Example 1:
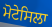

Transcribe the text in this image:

ਮੋਟੇਸਿਲਾ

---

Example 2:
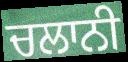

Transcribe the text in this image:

ਚਲਾਨੀ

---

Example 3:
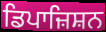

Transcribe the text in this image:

ਡਿਪਾਜ਼ਿਸ਼ਨ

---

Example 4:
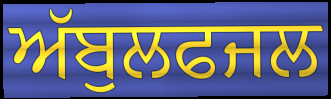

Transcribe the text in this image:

ਅੱਬੁਲਫਜਲ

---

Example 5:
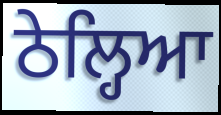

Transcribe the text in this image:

ਠੇਲ੍ਹਿਆ